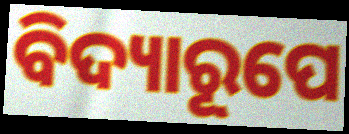
ବିଦ୍ୟାରୂପେ